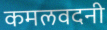
कमलवदनी